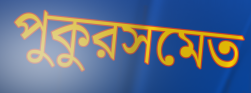
পুকুরসমেত